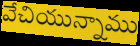
వేచియున్నాము